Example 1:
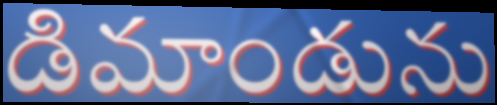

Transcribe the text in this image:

డిమాండును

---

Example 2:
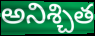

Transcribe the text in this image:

అనిశ్చిత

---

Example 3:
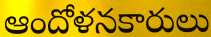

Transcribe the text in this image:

ఆందోళనకారులు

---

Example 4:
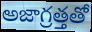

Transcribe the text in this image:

అజాగ్రత్తతో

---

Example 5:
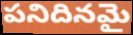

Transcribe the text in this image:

పనిదినమై